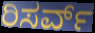
ರಿಸರ್ವ್